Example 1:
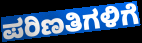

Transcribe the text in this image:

ಪರಿಣತಿಗಳಿಗೆ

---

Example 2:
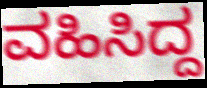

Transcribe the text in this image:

ವಹಿಸಿದ್ದ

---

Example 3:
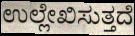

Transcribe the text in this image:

ಉಲ್ಲೇಖಿಸುತ್ತದೆ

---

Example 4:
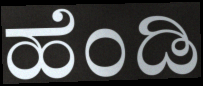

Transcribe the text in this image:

ಹೆಂಡಿ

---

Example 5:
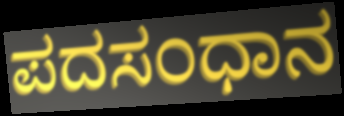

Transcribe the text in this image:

ಪದಸಂಧಾನ